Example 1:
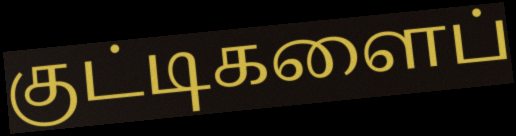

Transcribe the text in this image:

குட்டிகளைப்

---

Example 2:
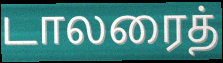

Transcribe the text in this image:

டாலரைத்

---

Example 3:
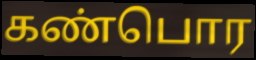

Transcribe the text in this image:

கண்பொர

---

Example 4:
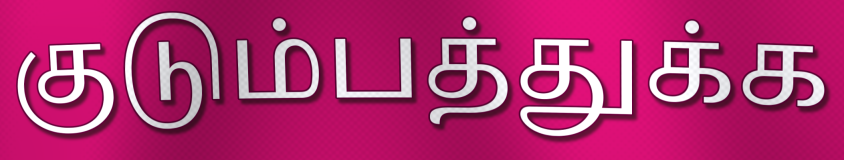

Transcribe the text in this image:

குடும்பத்துக்க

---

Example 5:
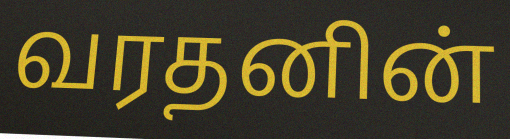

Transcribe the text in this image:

வரதனின்